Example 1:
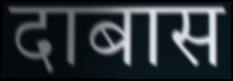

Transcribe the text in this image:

दाबास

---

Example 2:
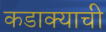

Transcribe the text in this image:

कडाक्याची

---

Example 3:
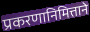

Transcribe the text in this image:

प्रकरणानिमित्ताने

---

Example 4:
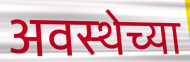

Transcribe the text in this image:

अवस्थेच्या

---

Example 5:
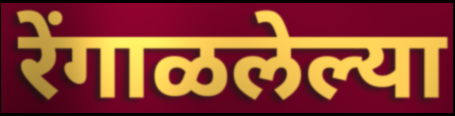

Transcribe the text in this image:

रेंगाळलेल्या